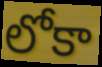
లోకా